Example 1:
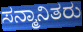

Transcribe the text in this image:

ಸನ್ಮಾನಿತರು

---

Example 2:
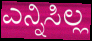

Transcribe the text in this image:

ಎನ್ನಿಸಿಲ್ಲ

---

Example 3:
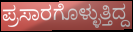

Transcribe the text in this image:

ಪ್ರಸಾರಗೊಳ್ಳುತ್ತಿದ್ದ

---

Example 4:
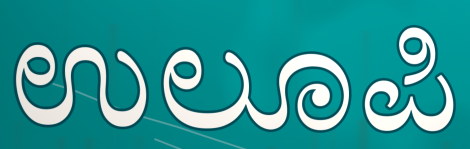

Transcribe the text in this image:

ಉಲೂಪಿ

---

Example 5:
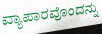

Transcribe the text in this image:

ವ್ಯಾಪಾರವೊಂದನ್ನು